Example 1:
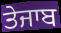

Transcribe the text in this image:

ਤੇਜਾਬ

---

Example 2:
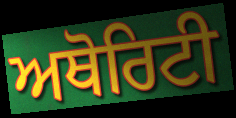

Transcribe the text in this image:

ਅਥੋਰਿਟੀ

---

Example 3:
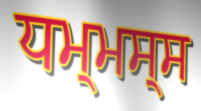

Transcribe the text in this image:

ਧਮ੍ਮਸ੍ਸ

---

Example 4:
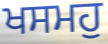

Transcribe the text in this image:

ਖਸਮਹੁ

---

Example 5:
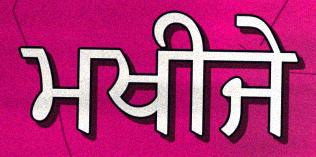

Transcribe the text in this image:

ਮਖੀਜੇ